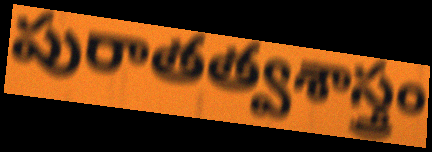
పురాతత్వశాస్త్రం